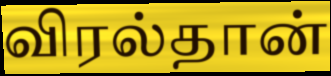
விரல்தான்